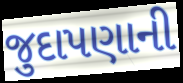
જુદાપણાની